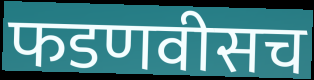
फडणवीसच